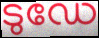
ടുഡേ